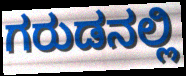
ಗರುಡನಲ್ಲಿ